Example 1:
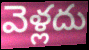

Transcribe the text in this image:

వెళ్లదు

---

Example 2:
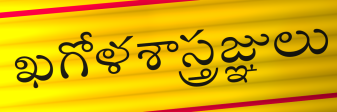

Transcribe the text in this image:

ఖగోళశాస్త్రజ్ఞులు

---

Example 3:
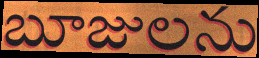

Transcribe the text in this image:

బూజులను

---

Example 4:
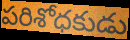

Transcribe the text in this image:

పరిశోధకుడు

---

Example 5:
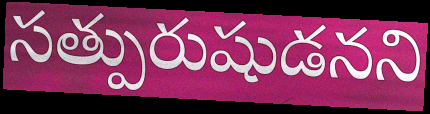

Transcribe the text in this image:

సత్పురుషుడనని